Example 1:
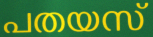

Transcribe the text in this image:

പതയസ്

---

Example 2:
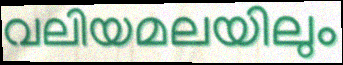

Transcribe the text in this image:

വലിയമലയിലും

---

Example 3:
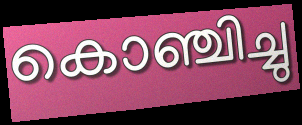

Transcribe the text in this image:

കൊഞ്ചിച്ചു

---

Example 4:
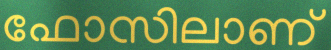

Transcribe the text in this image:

ഫോസിലാണ്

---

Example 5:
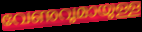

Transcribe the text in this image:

വേണുവുമായുള്ള